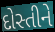
દોસ્તીને